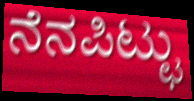
ನೆನಪಿಟ್ಟು